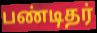
பண்டிதர்